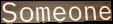
Someone